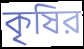
কৃষির